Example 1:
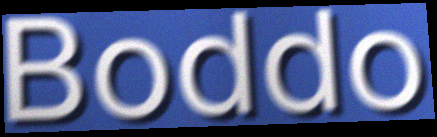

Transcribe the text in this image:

Boddo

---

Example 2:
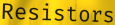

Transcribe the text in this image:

Resistors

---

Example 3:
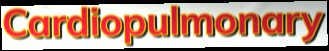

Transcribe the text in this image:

Cardiopulmonary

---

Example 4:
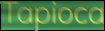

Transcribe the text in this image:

Tapioca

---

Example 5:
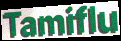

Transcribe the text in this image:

Tamiflu